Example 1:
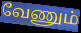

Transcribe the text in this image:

வேணும்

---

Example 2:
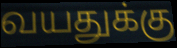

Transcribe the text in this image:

வயதுக்கு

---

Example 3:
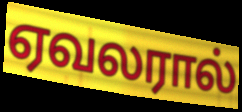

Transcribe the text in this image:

ஏவலரால்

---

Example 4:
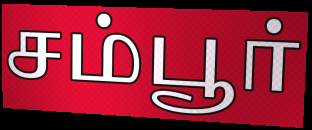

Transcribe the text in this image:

சம்பூர்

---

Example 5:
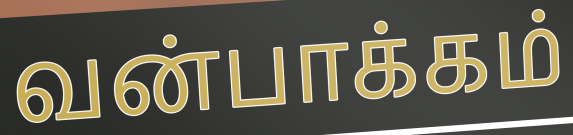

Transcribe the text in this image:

வன்பாக்கம்